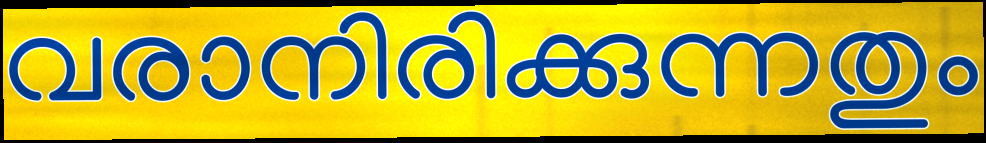
വരാനിരിക്കുന്നതും